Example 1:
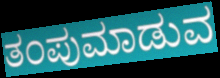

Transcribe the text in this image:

ತಂಪುಮಾಡುವ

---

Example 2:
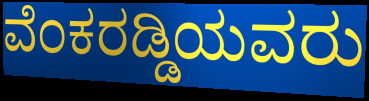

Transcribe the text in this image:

ವೆಂಕರಡ್ಡಿಯವರು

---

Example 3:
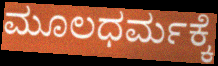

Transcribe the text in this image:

ಮೂಲಧರ್ಮಕ್ಕೆ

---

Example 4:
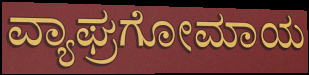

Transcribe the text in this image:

ವ್ಯಾಘ್ರಗೋಮಾಯ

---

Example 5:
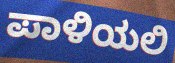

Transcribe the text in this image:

ಪಾಳಿಯಲಿ